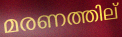
മരണത്തില്